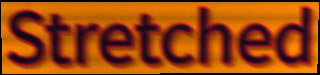
Stretched